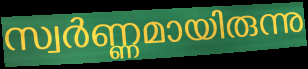
സ്വർണ്ണമായിരുന്നു